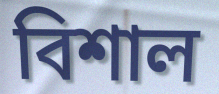
বিশাল